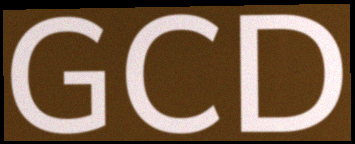
GCD